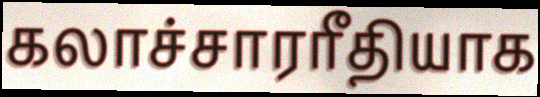
கலாச்சாரரீதியாக